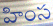
హింస